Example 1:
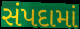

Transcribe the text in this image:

સંપદામાં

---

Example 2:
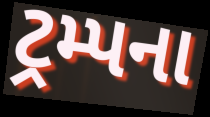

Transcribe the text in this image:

ટ્રમ્પના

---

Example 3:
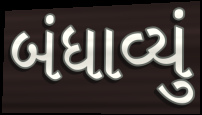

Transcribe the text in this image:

બંધાવ્યું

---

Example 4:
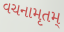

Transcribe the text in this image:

વચનામૃતમ્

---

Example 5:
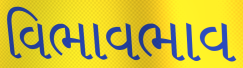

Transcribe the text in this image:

વિભાવભાવ